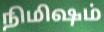
நிமிஷம்